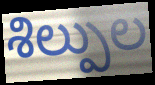
శిల్పుల